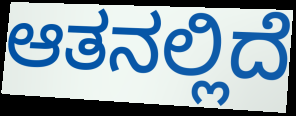
ಆತನಲ್ಲಿದೆ